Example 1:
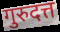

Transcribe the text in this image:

गुरुदत्त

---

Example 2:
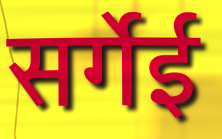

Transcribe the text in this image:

सर्गेई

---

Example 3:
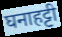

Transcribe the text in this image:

घनाहट्टी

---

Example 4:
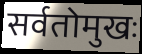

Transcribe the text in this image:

सर्वतोमुखः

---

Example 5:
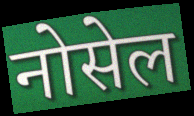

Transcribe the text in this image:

नोसेल